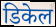
डिकेल